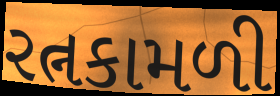
રત્નકામળી